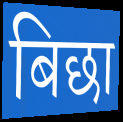
बिछा